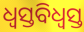
ଧ୍ୱସ୍ତବିଧ୍ୱସ୍ତ